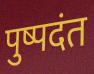
पुष्पदंत